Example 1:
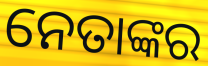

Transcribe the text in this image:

ନେତାଙ୍କର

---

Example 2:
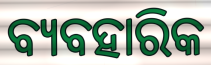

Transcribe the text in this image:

ବ୍ଯବହାରିକ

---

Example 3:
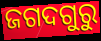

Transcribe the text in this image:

ଜଗଦଗୁରୁ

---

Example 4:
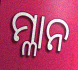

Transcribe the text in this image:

ମ୍ଳାନ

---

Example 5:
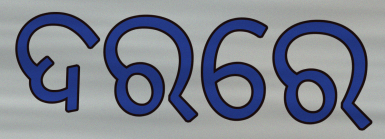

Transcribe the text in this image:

ଦରରେ